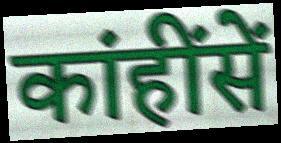
कांहींसें